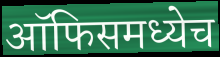
ऑफिसमध्येच